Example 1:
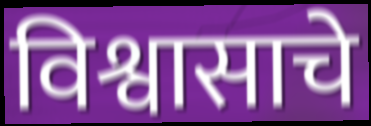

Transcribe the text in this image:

विश्वासाचे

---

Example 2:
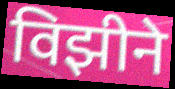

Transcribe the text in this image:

विझीने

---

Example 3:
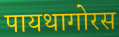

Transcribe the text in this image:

पायथागोरस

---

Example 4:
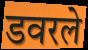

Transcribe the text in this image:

डवरले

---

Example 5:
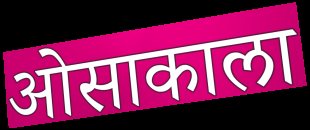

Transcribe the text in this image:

ओसाकाला